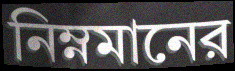
নিম্নমানের